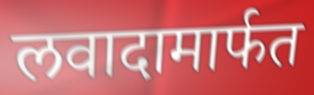
लवादामार्फत